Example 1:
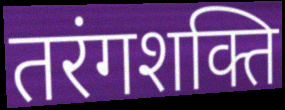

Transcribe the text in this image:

तरंगशक्ति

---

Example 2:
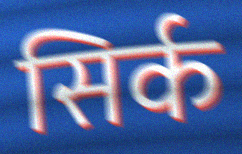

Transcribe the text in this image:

सिर्क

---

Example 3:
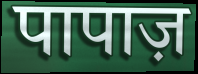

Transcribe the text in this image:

पापाज़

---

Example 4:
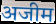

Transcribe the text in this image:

अजीम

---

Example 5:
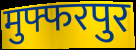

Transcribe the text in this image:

मुफ्फरपुर